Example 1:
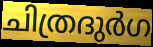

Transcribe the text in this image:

ചിത്രദുർഗ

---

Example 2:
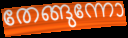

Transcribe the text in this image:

തേങ്ങുന്നോ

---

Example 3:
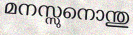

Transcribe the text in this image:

മനസ്സുനൊന്തു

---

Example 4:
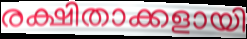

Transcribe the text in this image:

രക്ഷിതാക്കളായി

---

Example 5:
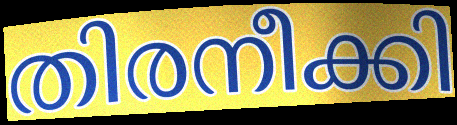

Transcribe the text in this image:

തിരനീക്കി